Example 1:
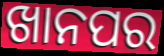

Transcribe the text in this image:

ଖାନପର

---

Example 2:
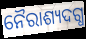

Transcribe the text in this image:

ନୈରାଶ୍ୟଦଗ୍ଧ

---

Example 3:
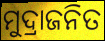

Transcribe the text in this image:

ମୁଦ୍ରାଜନିତ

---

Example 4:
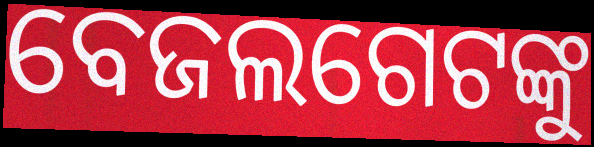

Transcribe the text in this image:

ବେଜଲଗେଟଙ୍କୁ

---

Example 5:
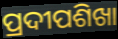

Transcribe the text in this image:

ପ୍ରଦୀପଶିଖା